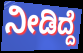
ನೀಡಿದ್ದೆ